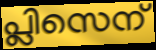
പ്ലിസെന്